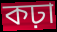
কঢ়া